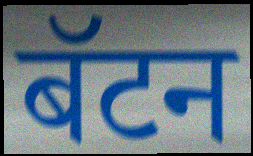
बॅटन